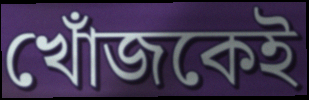
খোঁজকেই